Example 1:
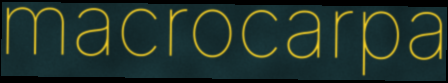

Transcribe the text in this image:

macrocarpa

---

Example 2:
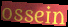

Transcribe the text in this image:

ossein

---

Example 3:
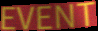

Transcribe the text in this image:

EVENT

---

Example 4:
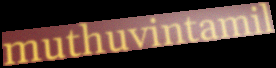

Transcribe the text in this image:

muthuvintamil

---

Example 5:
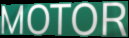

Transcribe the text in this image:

MOTOR